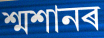
শ্মশানৰ